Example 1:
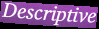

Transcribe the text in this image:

Descriptive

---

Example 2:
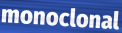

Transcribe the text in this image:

monoclonal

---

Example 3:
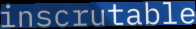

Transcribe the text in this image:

inscrutable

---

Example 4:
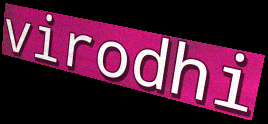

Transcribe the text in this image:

virodhi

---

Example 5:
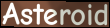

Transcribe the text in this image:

Asteroid